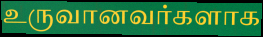
உருவானவர்களாக